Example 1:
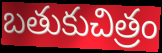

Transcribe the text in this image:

బతుకుచిత్రం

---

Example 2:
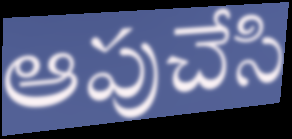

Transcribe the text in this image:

ఆపుచేసి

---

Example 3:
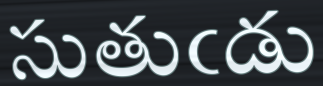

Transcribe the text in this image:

సుతుఁడు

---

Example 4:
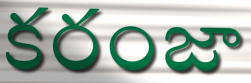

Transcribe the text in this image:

కరంజా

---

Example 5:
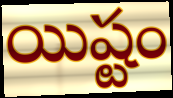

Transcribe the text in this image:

యిష్టం